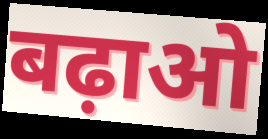
बढ़ाओ